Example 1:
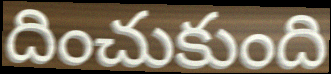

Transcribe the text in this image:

దించుకుంది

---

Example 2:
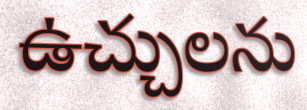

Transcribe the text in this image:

ఉచ్చులను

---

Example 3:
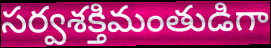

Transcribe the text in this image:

సర్వశక్తిమంతుడిగా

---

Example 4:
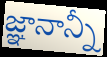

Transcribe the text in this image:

జ్ఞానాన్నీ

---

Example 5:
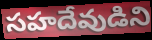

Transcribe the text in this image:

సహదేవుడిని